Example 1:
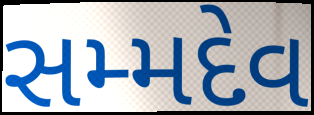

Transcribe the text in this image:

સમ્મદેવ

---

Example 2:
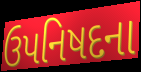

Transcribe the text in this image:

ઉપનિષદના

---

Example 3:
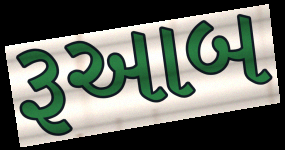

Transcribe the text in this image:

રૂઆબ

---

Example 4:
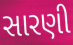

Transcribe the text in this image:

સારણી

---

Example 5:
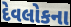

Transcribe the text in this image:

દેવલોકના